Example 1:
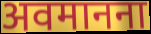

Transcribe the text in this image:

अवमानना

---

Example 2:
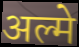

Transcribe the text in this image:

अल्मे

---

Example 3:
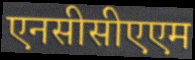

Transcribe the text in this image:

एनसीसीएएम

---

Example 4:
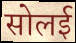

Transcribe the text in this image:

सोलई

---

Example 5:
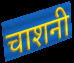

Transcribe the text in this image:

चाशनी